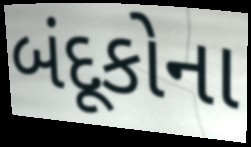
બંદૂકોના